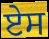
ਏਸ